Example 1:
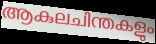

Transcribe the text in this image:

ആകുലചിന്തകളും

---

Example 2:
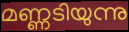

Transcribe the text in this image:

മണ്ണടിയുന്നു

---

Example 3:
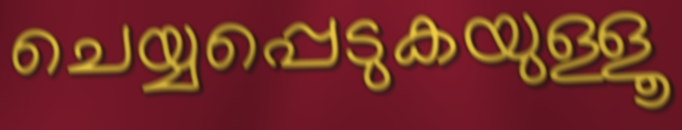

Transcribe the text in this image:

ചെയ്യപ്പെടുകയുള്ളൂ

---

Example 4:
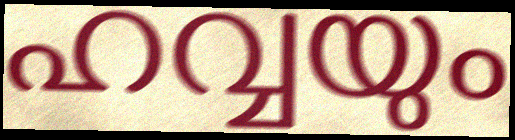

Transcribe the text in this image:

ഹവ്വയും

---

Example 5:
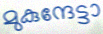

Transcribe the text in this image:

മുകുന്ദേട്ടാ